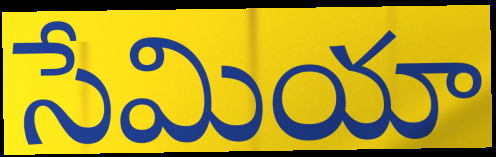
సేమియా